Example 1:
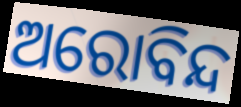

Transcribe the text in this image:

ଅରୋବିନ୍ଦ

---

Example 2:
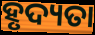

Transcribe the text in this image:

ହୃଦ୍ୟତା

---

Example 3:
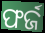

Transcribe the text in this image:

ଫର୍ଜ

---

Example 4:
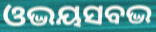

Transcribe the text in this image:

ଓଦ୍ଭୟସବଦ୍ଭ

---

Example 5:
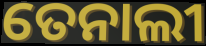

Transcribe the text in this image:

ତେନାଲୀ